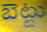
బెట్టు